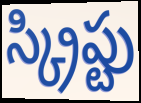
స్క్రిప్టు